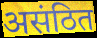
असंठित